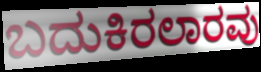
ಬದುಕಿರಲಾರವು